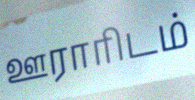
ஊராரிடம்